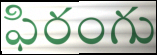
ఫిరంగు